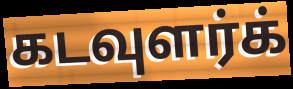
கடவுளர்க்